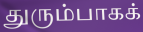
துரும்பாகக்